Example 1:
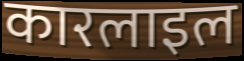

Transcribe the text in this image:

कारलाइल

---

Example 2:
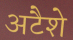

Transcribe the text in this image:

अटैशे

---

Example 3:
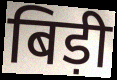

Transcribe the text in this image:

बिड़ी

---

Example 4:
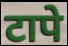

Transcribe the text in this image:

टापे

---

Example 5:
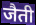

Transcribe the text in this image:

जैती